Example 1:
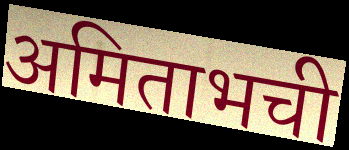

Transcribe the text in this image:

अमिताभची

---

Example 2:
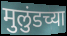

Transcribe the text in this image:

मुलुंडच्या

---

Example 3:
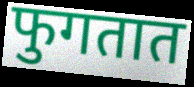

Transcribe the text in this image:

फुगतात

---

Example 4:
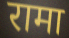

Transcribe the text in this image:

रामा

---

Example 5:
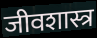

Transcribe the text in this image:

जीवशास्त्र